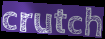
crutch